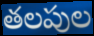
తలపుల